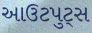
આઉટપુટ્સ